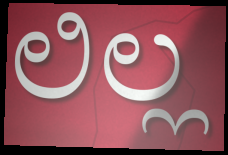
ಲಿಲ್ಲ